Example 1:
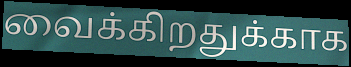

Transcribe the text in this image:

வைக்கிறதுக்காக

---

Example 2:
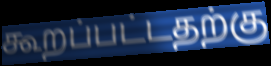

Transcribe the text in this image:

கூறப்பட்டதற்கு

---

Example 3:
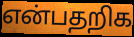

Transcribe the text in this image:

என்பதறிக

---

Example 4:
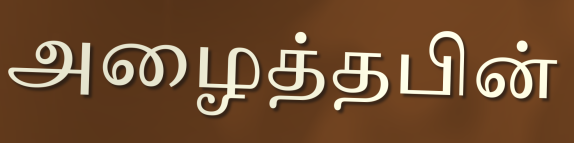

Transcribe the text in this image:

அழைத்தபின்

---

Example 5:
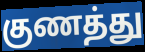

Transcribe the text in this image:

குணத்து